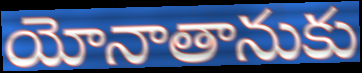
యోనాతానుకు